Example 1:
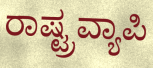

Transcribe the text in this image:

ರಾಷ್ಟ್ರವ್ಯಾಪಿ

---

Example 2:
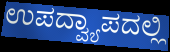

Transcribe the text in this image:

ಉಪದ್ವ್ಯಾಪದಲ್ಲಿ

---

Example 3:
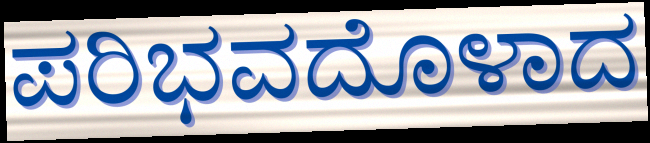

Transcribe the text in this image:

ಪರಿಭವದೊಳಾದ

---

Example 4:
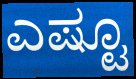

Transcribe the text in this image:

ಎಷ್ಟೂ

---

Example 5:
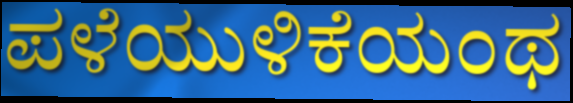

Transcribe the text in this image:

ಪಳೆಯುಳಿಕೆಯಂಥ